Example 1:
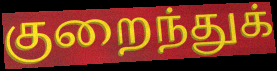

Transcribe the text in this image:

குறைந்துக்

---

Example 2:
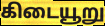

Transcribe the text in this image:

கிடையூறு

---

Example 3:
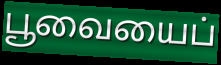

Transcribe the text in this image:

பூவையைப்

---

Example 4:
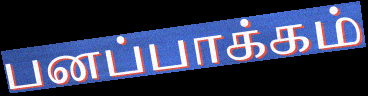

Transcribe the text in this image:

பனப்பாக்கம்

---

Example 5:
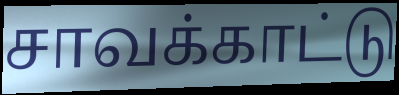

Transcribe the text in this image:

சாவக்காட்டு